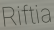
Riftia